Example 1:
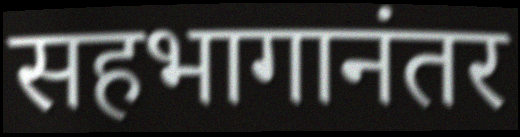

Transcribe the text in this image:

सहभागानंतर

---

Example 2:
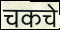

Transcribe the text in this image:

चकचे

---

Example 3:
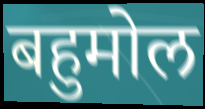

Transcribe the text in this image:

बहुमोल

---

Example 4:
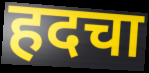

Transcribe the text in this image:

हदचा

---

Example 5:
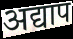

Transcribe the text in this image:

अद्याप